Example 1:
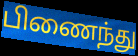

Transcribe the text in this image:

பிணைந்து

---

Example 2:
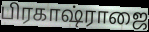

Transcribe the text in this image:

பிரகாஷ்ராஜை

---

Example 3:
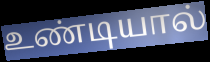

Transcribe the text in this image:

உண்டியால்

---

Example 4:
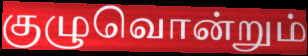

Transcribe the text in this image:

குழுவொன்றும்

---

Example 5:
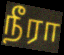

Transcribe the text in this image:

நீரா